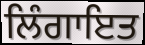
ਲਿੰਗਾਇਤ